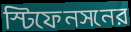
স্টিফেনসনের